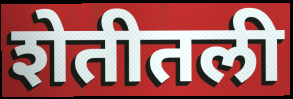
शेतीतली